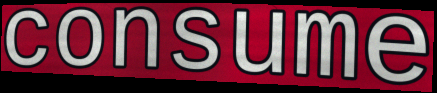
consume